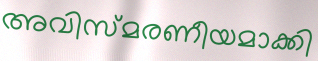
അവിസ്മരണീയമാക്കി